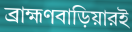
ব্রাহ্মণবাড়িয়ারই